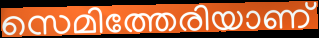
സെമിത്തേരിയാണ്